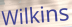
Wilkins